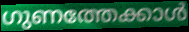
ഗുണത്തേക്കാൾ